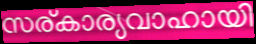
സര്കാര്യവാഹായി